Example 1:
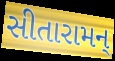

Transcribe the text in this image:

સીતારામન્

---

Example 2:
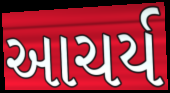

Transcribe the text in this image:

આચર્ય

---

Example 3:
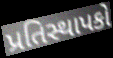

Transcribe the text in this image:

પ્રતિસ્થાપકો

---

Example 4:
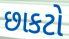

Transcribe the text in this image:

છાકટો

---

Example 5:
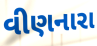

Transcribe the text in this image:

વીણનારા